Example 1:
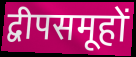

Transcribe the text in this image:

द्वीपसमूहों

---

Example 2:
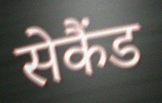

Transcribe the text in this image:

सेकैंड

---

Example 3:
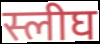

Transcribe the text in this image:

स्लीघ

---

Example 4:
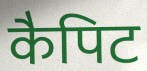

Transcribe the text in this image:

कैपिट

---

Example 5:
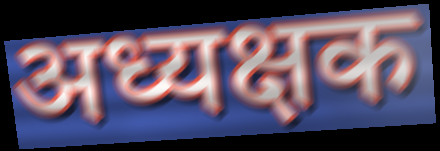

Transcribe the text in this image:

अध्यक्षक